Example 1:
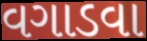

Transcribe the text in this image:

વગાડવા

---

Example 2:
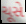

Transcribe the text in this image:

ચૂસે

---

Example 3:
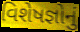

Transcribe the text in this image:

વિશેષજ્ઞોનું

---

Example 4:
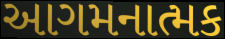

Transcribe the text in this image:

આગમનાત્મક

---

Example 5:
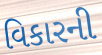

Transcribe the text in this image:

વિકારની